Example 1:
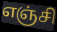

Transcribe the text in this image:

எஞ்சி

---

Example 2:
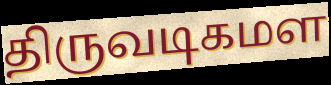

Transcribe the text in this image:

திருவடிகமள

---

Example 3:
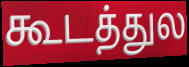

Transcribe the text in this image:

கூடத்துல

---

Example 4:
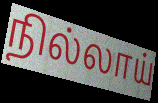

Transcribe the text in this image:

நில்லாய்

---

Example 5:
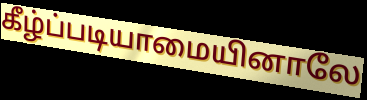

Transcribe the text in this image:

கீழ்ப்படியாமையினாலே